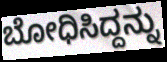
ಬೋಧಿಸಿದ್ದನ್ನು